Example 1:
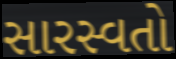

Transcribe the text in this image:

સારસ્વતો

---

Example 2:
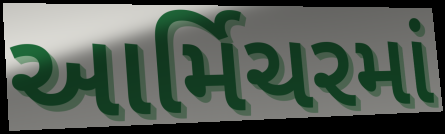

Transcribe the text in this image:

આર્મિચરમાં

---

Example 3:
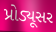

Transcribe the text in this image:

પ્રોડ્યૂસર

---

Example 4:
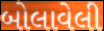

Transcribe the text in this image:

બોલાવેલી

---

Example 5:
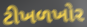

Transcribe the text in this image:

ટીખળખોર